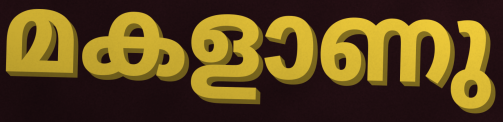
മകളാണു